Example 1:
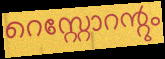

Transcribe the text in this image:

റെസ്റ്റോറന്റും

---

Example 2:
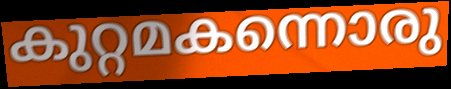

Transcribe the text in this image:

കുറ്റമകന്നൊരു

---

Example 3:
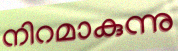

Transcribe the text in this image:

നിറമാകുന്നു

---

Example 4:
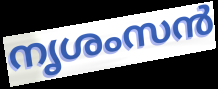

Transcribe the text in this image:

നൃശംസൻ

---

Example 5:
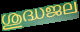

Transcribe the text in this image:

ശുദ്ധജല